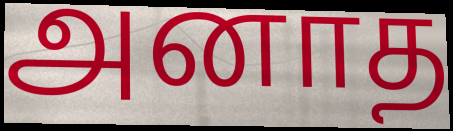
அனாத